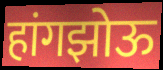
हांगझोऊ